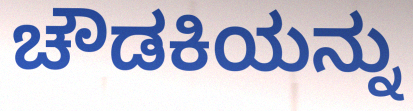
ಚೌಡಕಿಯನ್ನು